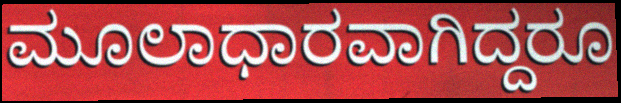
ಮೂಲಾಧಾರವಾಗಿದ್ದರೂ